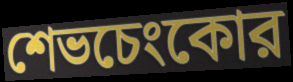
শেভচেংকোর